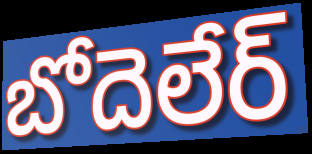
బోదెలేర్